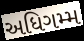
અધિગમ્મ